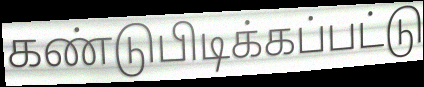
கண்டுபிடிக்கப்பட்டு